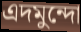
এদমুন্দো